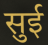
सुई